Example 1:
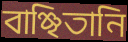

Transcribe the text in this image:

বাঞ্ছিতানি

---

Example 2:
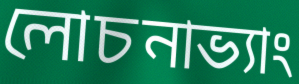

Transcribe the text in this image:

লোচনাভ্যাং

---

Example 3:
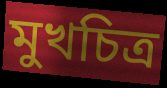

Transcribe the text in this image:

মুখচিত্র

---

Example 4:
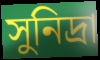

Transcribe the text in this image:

সুনিদ্রা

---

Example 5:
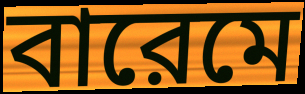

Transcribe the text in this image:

বারেমে